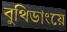
বুথিডাংয়ে